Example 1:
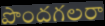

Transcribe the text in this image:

పొందగలరా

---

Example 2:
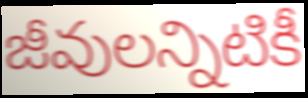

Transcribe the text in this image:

జీవులన్నిటికీ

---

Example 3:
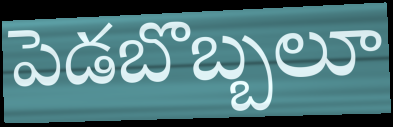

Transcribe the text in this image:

పెడబొబ్బలూ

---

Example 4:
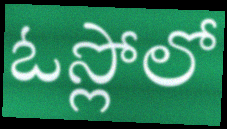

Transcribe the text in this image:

ఓస్లోలో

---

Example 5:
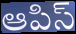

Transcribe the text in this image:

ఆపిస్